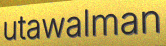
utawalman